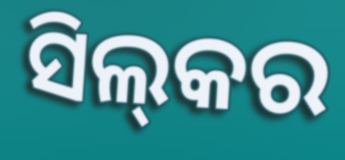
ସିଲ୍‍କର